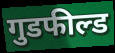
गुडफील्ड